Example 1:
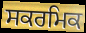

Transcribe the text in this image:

ਸਕਰਮਿਕ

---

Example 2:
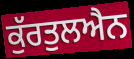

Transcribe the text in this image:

ਕੁੱਰਤੁਲਐਨ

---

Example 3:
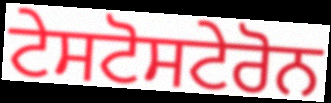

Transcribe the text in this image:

ਟੇਸਟੋਸਟੇਰੋਨ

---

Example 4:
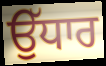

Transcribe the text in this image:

ਉੱਧਾਰ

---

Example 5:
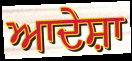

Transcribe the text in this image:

ਆਦੇਸ਼ਾ